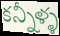
కన్నీళ్ళ